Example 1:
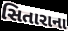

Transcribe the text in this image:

સિતારાના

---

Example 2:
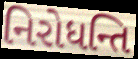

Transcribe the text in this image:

નિરોધન્તિ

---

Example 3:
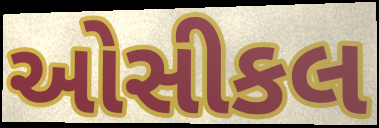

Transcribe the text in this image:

ઓસીકલ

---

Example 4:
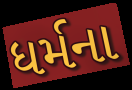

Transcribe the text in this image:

ધર્મના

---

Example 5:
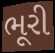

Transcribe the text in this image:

ભૂરી